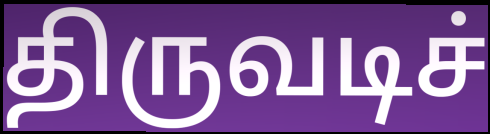
திருவடிச்